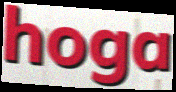
hoga